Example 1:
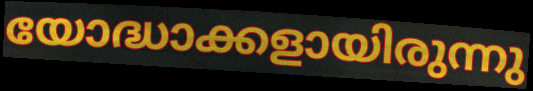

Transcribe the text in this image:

യോദ്ധാക്കളായിരുന്നു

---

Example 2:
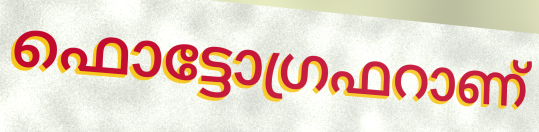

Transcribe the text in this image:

ഫൊട്ടോഗ്രഫറാണ്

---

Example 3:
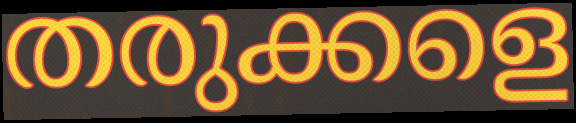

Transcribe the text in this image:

തരുക്കളെ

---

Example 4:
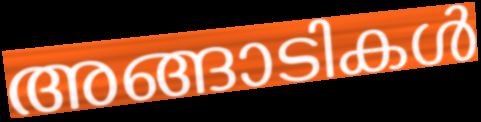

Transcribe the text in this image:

അങ്ങാടികൾ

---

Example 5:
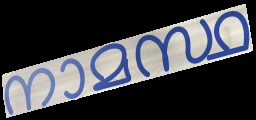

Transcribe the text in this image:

നാമസ്ഥ